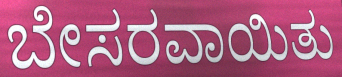
ಬೇಸರವಾಯಿತು